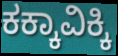
ಕಕ್ಕಾವಿಕ್ಕಿ